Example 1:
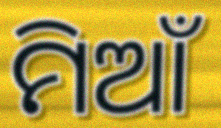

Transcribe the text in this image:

ମିଆଁ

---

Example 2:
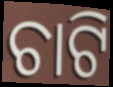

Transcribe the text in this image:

ଚାଟି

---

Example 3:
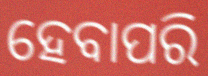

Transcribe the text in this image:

ହେବାପରି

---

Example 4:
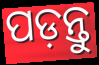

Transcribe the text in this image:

ପଡ଼ନ୍ତୁ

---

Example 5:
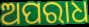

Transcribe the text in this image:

ଅପରାଧ